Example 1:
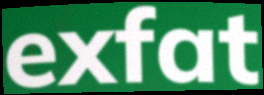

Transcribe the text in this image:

exfat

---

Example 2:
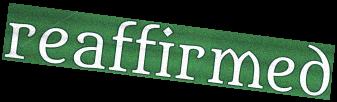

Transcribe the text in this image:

reaffirmed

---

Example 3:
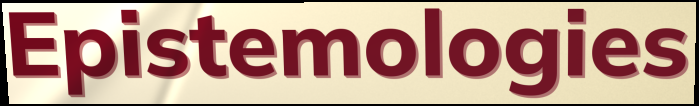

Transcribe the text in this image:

Epistemologies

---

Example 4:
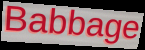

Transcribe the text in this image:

Babbage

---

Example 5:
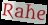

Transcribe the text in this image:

Rahe